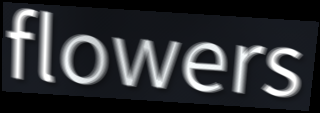
flowers